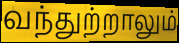
வந்துற்றாலும்